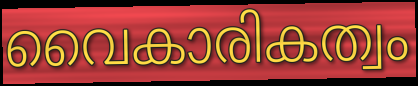
വൈകാരികത്വം